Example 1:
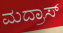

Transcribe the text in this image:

ಮದ್ರಾಸ್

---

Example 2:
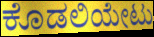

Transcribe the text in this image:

ಕೊಡಲಿಯೇಟು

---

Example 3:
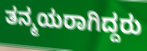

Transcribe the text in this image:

ತನ್ಮಯರಾಗಿದ್ದರು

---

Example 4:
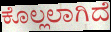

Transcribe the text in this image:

ಕೊಲ್ಲಲಾಗಿದೆ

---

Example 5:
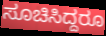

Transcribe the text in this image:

ಸೂಚಿಸಿದ್ದರೂ